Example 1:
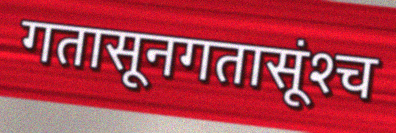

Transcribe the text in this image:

गतासूनगतासूंश्च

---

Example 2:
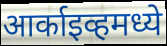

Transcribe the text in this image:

आर्काइव्हमध्ये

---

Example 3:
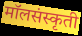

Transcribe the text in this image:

मॉलसंस्कृती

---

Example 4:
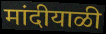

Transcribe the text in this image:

मांदीयाळी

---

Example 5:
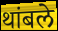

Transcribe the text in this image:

थांबले